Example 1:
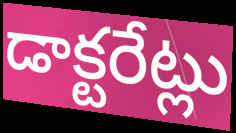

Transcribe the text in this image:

డాక్టరేట్లు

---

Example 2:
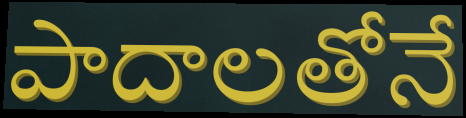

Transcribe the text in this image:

పాదాలతోనే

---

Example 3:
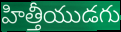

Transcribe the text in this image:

హిత్తీయుడగు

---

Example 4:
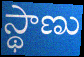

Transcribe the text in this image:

స్థాణు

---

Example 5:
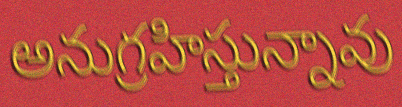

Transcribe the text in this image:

అనుగ్రహిస్తున్నావు